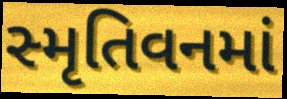
સ્મૃતિવનમાં